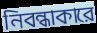
নিবন্ধাকারে